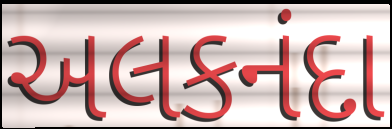
અલકનંદા